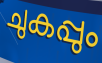
ചുകപ്പും